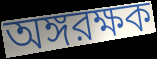
অঙ্গরক্ষক